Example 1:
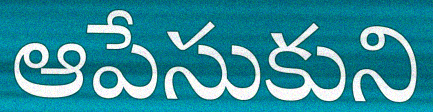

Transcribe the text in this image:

ఆపేసుకుని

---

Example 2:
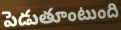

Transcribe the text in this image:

పెడుతూంటుంది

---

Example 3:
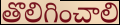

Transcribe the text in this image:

తొలిగించాలి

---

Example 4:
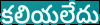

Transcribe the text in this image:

కలియలేదు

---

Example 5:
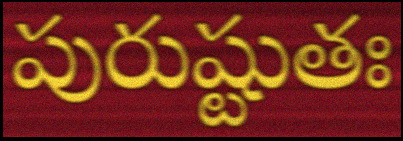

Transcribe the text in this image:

పురుష్టుతః